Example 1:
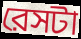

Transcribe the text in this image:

রেসটা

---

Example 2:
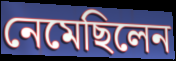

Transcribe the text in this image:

নেমেছিলেন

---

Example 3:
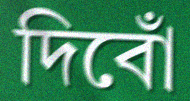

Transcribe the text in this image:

দিবোঁ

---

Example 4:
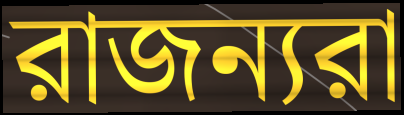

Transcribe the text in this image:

রাজন্যরা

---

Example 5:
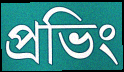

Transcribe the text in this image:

প্রভিং